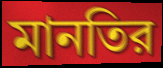
মানতির